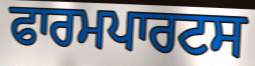
ਫਾਰਮਪਾਰਟਸ